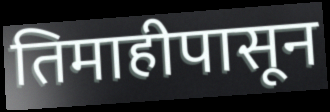
तिमाहीपासून